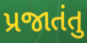
પ્રજાતંતુ